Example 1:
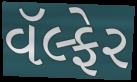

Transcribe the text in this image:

વૅલ્ફેર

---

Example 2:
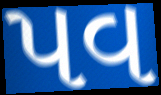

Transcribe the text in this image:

પવ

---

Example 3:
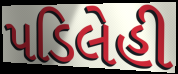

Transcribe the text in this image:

પડિલેહી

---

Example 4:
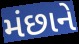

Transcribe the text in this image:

મંછાને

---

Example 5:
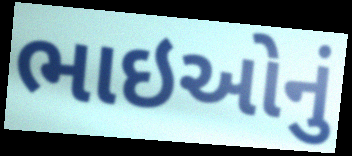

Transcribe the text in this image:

ભાઇઓનું